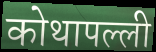
कोथापल्ली